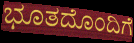
ಭೂತದೊಂದಿಗೆ